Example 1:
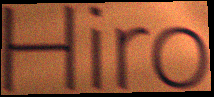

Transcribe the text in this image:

Hiro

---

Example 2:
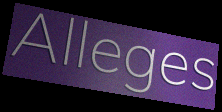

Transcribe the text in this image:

Alleges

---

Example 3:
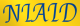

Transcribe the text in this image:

NIAID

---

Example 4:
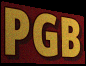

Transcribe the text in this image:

PGB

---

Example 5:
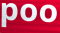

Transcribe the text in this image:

poo